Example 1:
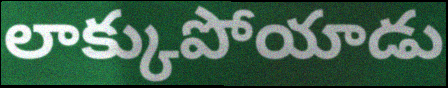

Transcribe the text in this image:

లాక్కుపోయాడు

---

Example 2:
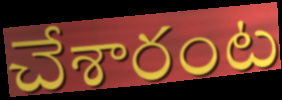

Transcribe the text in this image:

చేశారంట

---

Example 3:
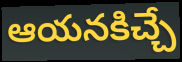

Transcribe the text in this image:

ఆయనకిచ్చే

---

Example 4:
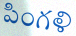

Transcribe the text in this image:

పింగళి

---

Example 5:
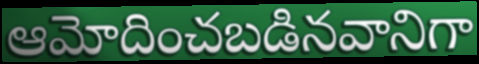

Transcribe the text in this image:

ఆమోదించబడినవానిగా